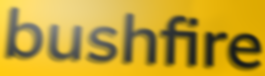
bushfire